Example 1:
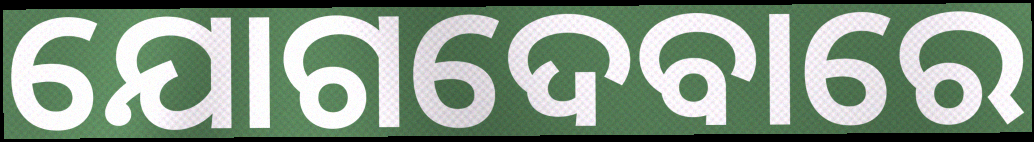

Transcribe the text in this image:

ଯୋଗଦେବାରେ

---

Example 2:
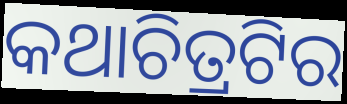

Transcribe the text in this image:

କଥାଚିତ୍ରଟିର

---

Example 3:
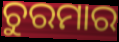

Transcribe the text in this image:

ଚୁରମାର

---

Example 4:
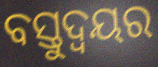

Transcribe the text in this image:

ବସ୍ତୁଦ୍ୱୟର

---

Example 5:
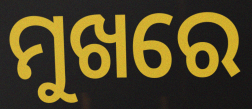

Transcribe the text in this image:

ମୁଖରେ